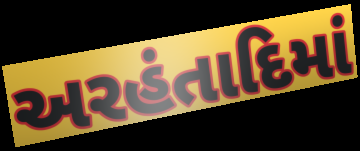
અરહંતાદિમાં